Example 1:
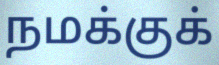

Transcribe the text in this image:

நமக்குக்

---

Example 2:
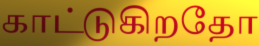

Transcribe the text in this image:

காட்டுகிறதோ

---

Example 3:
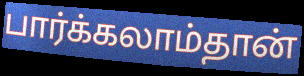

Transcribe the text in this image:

பார்க்கலாம்தான்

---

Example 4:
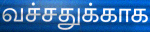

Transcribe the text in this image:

வச்சதுக்காக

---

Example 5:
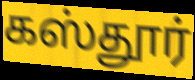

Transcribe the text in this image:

கஸ்தூர்